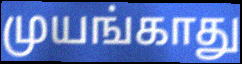
முயங்காது